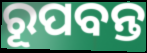
ରୂପବନ୍ତ